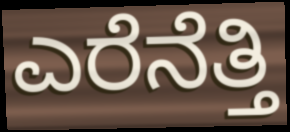
ಎರೆನೆತ್ತಿ